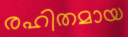
രഹിതമായ